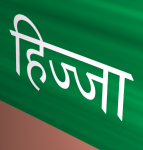
हिज्जा